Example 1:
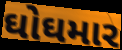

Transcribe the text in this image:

ઘોઘમાર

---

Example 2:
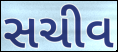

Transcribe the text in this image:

સચીવ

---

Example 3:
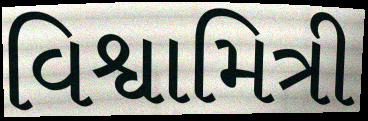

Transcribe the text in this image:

વિશ્વામિત્રી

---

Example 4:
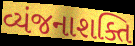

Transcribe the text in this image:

વ્યંજનાશક્તિ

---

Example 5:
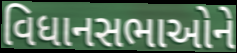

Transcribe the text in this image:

વિધાનસભાઓને